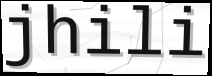
jhili